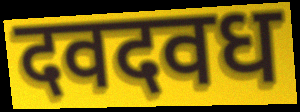
दवदवध